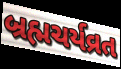
બ્રહ્મચર્યવ્રત